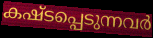
കഷ്ടപ്പെടുന്നവർ